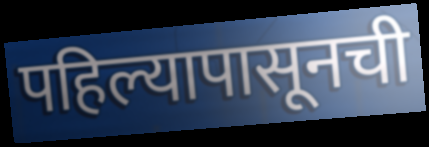
पहिल्यापासूनची